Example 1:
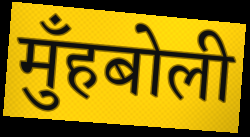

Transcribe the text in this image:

मुँहबोली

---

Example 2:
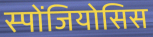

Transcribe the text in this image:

स्पोंजियोसिस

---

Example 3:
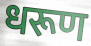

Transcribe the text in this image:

धरूण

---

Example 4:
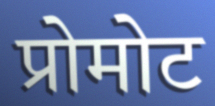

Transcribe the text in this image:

प्रोमोट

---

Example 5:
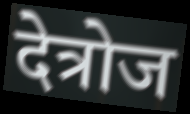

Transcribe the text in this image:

देत्रोज